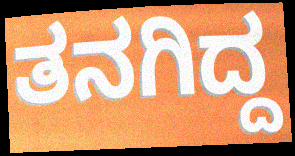
ತನಗಿದ್ದ